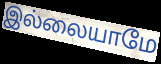
இல்லையாமே